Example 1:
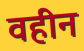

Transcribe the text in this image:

वहीन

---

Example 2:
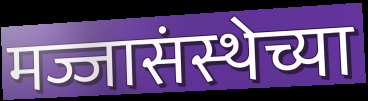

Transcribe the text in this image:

मज्जासंस्थेच्या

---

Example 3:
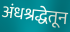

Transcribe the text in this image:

अंधश्रद्धेतून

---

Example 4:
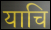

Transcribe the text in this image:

याचि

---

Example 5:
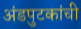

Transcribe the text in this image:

अंडपुटकांची